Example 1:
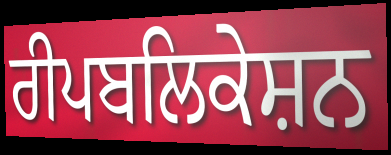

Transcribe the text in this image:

ਰੀਪਬਲਿਕੇਸ਼ਨ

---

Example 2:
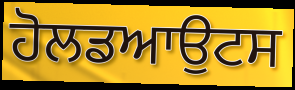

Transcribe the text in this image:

ਹੋਲਡਆਉਟਸ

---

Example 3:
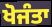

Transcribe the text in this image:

ਖੋਜੰਤਾ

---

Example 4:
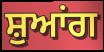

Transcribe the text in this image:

ਸ਼ੁਆਂਗ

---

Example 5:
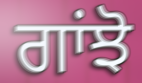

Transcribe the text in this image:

ਗਾਂਝੋ